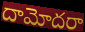
దామోదరా